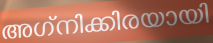
അഗ്‌നിക്കിരയായി